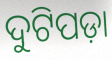
ଦୁଟିପଡ଼ା